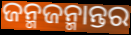
ଜନ୍ମଜନ୍ମାନ୍ତର